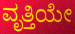
ವೃತ್ತಿಯೇ